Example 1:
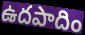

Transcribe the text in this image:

ఉదపాదిం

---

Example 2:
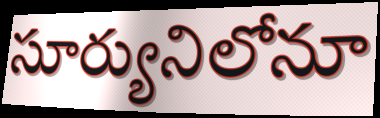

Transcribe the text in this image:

సూర్యునిలోనూ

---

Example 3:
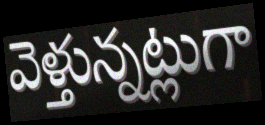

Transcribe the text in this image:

వెళ్తున్నట్లుగా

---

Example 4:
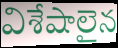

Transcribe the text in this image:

విశేషాలైన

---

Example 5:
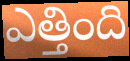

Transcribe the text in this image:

ఎత్తింది